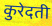
कुरेदती